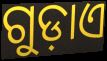
ଗୁଡ଼ାଏ